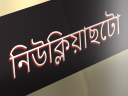
নিউক্লিয়াছটো